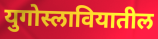
युगोस्लावियातील